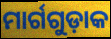
ମାର୍ଗଗୁଡ଼ାକ